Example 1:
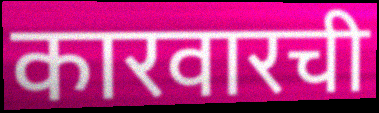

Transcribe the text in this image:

कारवारची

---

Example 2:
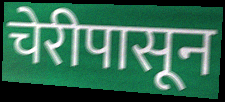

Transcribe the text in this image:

चेरीपासून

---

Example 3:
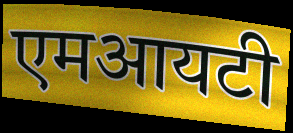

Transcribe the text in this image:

एमआयटी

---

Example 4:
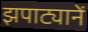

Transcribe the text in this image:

झपाट्यानें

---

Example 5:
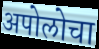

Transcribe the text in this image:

अपोलोचा